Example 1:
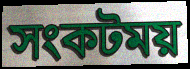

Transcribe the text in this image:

সংকটময়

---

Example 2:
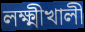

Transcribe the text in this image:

লক্ষ্মীখালী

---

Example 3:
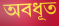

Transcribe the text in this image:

অবধূত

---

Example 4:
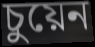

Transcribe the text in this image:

চুয়েন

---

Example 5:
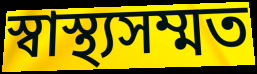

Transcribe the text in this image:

স্বাস্থ্যসম্মত